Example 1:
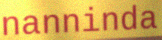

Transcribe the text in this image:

nanninda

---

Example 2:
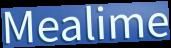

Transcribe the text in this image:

Mealime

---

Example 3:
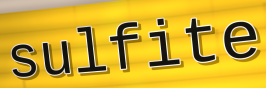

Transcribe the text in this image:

sulfite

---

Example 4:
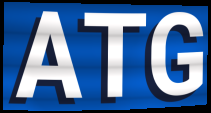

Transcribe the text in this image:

ATG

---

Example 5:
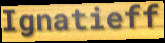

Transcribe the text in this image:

Ignatieff